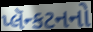
પ્લૅન્કટનનો